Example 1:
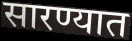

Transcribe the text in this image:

सारण्यात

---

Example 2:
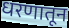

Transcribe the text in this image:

धरणातून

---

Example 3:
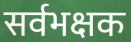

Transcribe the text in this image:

सर्वभक्षक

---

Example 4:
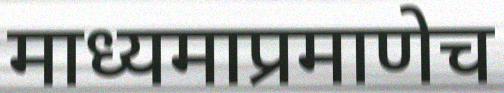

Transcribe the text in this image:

माध्यमाप्रमाणेच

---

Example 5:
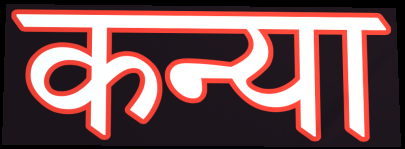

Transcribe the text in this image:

कन्या